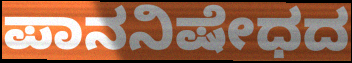
ಪಾನನಿಷೇಧದ